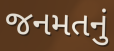
જનમતનું